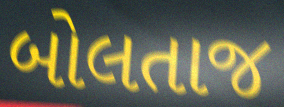
બોલતાજ